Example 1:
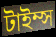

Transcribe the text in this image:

টাইম্স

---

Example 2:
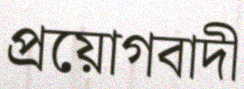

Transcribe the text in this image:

প্রয়োগবাদী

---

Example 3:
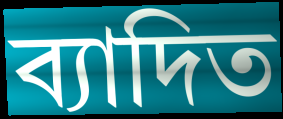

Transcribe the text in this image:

ব্যাদিত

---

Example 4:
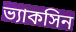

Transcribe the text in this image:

ভ্যাকসিন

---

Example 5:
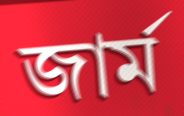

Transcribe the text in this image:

জার্ম